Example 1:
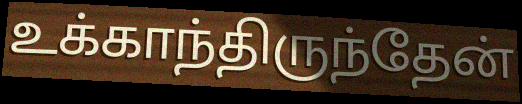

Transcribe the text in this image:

உக்காந்திருந்தேன்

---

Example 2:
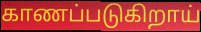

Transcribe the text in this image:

காணப்படுகிறாய்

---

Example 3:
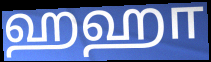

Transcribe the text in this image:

ஹஹா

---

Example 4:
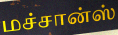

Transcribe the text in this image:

மச்சான்ஸ்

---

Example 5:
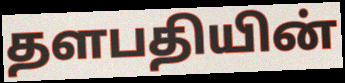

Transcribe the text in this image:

தளபதியின்